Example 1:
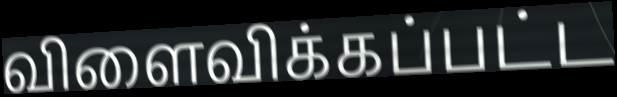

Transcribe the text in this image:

விளைவிக்கப்பட்ட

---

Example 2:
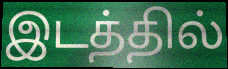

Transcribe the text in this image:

இடத்தில்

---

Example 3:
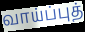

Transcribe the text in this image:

வாய்ப்புத்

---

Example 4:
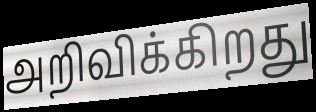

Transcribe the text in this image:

அறிவிக்கிறது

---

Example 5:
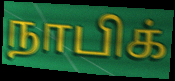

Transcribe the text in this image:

நாபிக்